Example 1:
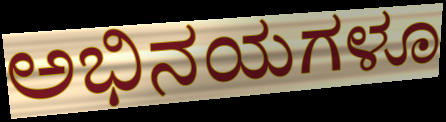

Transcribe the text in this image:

ಅಭಿನಯಗಳೂ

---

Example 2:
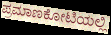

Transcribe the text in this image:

ಪ್ರಮಾಣಕೋಟಿಯಲ್ಲಿ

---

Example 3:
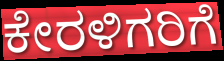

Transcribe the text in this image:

ಕೇರಳಿಗರಿಗೆ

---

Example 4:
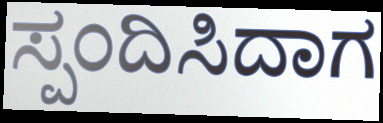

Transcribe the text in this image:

ಸ್ಪಂದಿಸಿದಾಗ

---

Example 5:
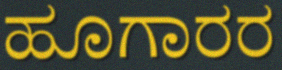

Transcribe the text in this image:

ಹೂಗಾರರ